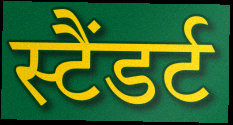
स्टैंडर्ट